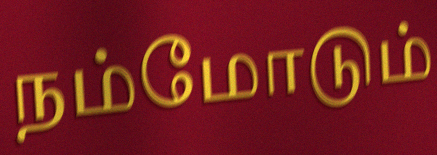
நம்மோடும்